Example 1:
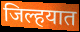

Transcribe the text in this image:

जिल्हयात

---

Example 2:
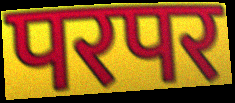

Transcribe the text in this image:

परपर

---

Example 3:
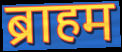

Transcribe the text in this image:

ब्राहम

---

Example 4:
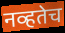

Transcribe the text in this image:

नव्हतेच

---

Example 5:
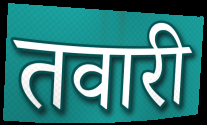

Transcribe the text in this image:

तवारी